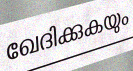
ഖേദിക്കുകയും